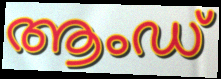
ആംഡ്